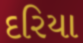
દરિયા